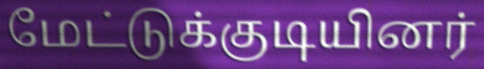
மேட்டுக்குடியினர்